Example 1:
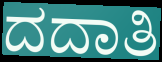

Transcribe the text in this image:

ದದಾತಿ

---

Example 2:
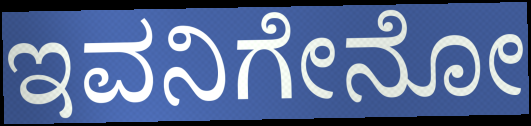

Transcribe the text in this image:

ಇವನಿಗೇನೋ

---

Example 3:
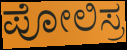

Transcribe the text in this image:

ಪೋಲಿಸ್ರ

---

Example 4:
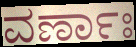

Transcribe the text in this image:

ವರ್ಣಾಃ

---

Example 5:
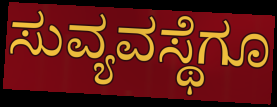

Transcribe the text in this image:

ಸುವ್ಯವಸ್ಥೆಗೂ